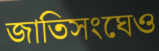
জাতিসংঘেও